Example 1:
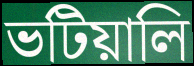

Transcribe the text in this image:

ভটিয়ালি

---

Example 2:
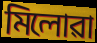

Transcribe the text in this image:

মিলোৱা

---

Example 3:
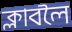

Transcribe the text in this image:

ক্লাবলৈ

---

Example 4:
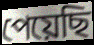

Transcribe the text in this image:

পেয়েছি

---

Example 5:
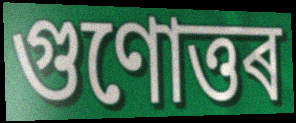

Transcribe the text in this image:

গুণোত্তৰ